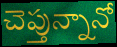
చెప్తున్నానో